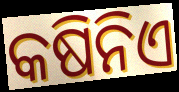
କଷିନିଏ